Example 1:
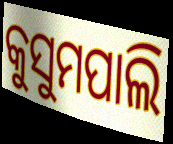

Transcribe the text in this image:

କୁସୁମପାଲି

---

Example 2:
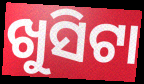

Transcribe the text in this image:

ଖୁସିଟା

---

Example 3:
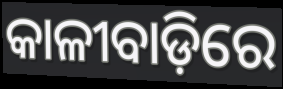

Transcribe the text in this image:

କାଳୀବାଡ଼ିରେ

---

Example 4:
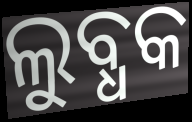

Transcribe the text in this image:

ଲୁବ୍ଧକ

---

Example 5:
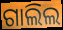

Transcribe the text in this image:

ଗାଲିଲ